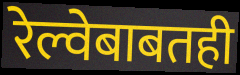
रेल्वेबाबतही